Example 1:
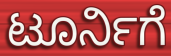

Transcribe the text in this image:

ಟೂರ್ನಿಗೆ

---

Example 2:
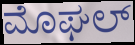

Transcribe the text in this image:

ಮೊಘಲ್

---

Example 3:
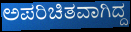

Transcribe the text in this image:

ಅಪರಿಚಿತವಾಗಿದ್ದ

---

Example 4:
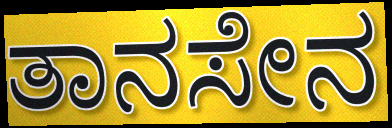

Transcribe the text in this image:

ತಾನಸೇನ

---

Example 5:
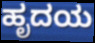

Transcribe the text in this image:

ಹೃದಯ